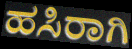
ಹಸಿರಾಗಿ